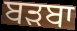
ਬੜਬਾ